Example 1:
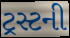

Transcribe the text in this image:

ટ્રસ્ટની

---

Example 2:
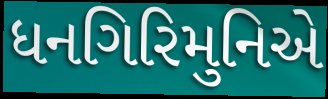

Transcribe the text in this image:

ધનગિરિમુનિએ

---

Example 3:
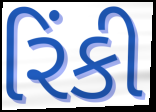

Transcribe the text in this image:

રિંકી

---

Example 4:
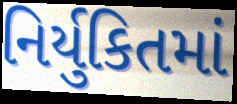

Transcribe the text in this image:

નિર્યુકિતમાં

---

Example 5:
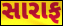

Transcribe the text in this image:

સારાફ